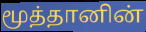
மூத்தானின்